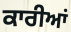
ਕਾਰੀਆਂ